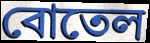
বোতেল